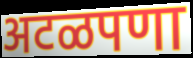
अटळपणा